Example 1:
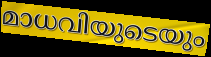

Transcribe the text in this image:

മാധവിയുടെയും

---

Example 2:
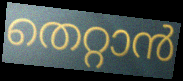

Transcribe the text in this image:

തെറ്റാൻ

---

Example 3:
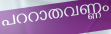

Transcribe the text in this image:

പററാതവണ്ണം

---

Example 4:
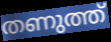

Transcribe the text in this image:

തണുത്ത്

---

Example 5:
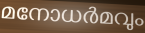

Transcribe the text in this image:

മനോധർമവും